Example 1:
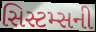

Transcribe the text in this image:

સિસ્ટમ્સની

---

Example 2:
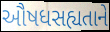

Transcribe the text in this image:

ઔષધસહ્યતાને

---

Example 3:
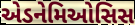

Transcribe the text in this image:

એડનેમિઓસિસ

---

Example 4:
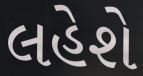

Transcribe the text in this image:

લહેશે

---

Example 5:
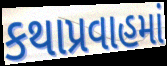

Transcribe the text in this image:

કથાપ્રવાહમાં